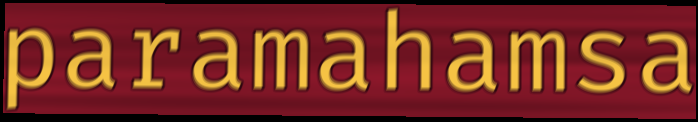
paramahamsa